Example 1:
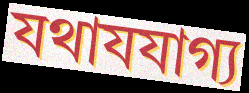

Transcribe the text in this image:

যথাযযাগ্য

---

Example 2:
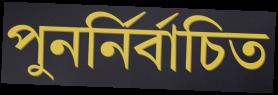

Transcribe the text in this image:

পুনর্নির্বাচিত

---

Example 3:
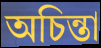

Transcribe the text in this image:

অচিন্তা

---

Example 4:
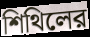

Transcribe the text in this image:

শিথিলের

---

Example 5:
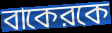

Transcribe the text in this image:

বাকেরকে